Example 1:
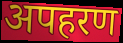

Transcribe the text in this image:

अपहरण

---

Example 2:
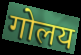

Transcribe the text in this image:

गोलय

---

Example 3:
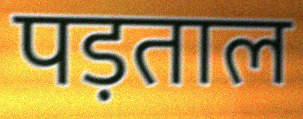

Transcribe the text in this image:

पड़ताल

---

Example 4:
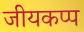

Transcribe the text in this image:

जीयकप्प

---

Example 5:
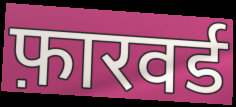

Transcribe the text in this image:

फ़ारवर्ड